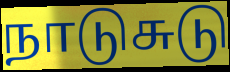
நாடுசுடு